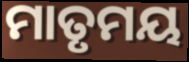
ମାତୃମୟ